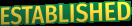
ESTABLISHED